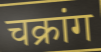
चक्रांग